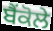
ਬੈਂਕੋਲੇ